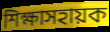
শিক্ষাসহায়ক